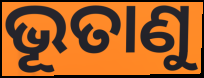
ଭୂତାଣୁ